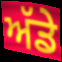
ਅੱਡੇ